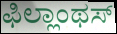
ಫಿಲ್ಲಾಂಥಸ್